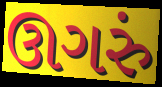
ઊગરું